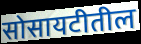
सोसायटीतील